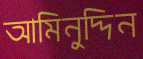
আমিনুদ্দিন